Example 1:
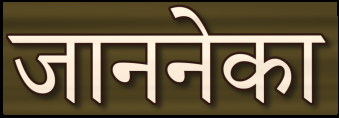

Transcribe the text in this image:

जाननेका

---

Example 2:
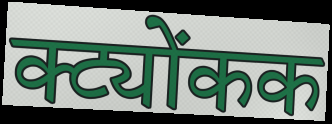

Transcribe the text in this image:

क्ट्योंकक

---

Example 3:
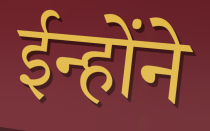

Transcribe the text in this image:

ईन्होंने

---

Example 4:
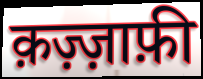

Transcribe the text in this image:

क़ज़्ज़ाफ़ी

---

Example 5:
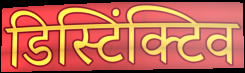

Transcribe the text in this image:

डिस्टिंक्टिव